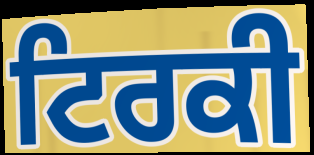
ਟਿਰਕੀ